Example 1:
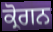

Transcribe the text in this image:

ਕ੍ਰੋਗਨ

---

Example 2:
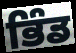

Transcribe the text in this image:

ਭਿੰਡ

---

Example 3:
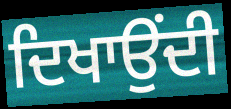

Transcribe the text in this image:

ਦਿਖਾਉਂਦੀ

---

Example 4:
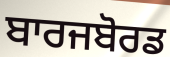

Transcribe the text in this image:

ਬਾਰਜਬੋਰਡ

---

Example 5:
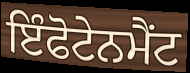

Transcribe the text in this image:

ਇੰਫੋਟੇਨਮੈਂਟ